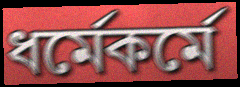
ধর্মেকর্মে